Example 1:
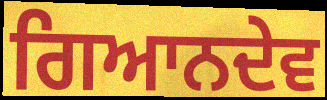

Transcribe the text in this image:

ਗਿਆਨਦੇਵ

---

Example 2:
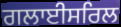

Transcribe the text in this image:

ਗਲਾਈਸਰਿਲ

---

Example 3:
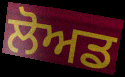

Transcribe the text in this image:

ਲੋਅਡ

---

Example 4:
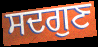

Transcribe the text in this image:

ਸਦਗੁਣ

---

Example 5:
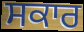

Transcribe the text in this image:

ਸਕਾਰ